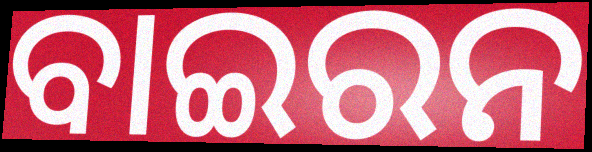
ବାଇରନ